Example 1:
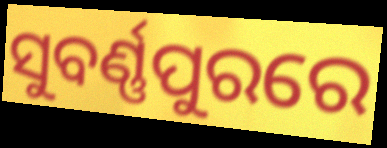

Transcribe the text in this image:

ସୁବର୍ଣ୍ଣପୁରରେ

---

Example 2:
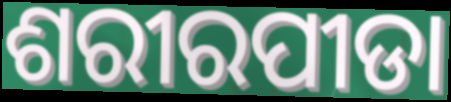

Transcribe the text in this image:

ଶରୀରପୀଡା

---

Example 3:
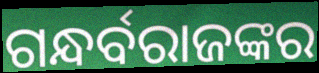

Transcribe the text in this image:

ଗନ୍ଧର୍ବରାଜଙ୍କର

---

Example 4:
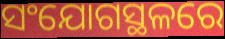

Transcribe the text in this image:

ସଂଯୋଗସ୍ଥଳରେ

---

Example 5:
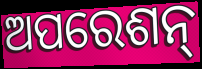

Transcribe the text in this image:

ଅପରେଶନ୍